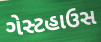
ગેસ્ટહાઉસ